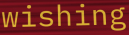
wishing